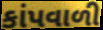
કાંપવાળી